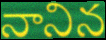
నానిన